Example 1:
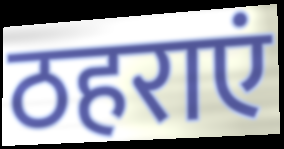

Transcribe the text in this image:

ठहराएं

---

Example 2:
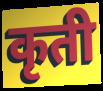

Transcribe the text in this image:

कृती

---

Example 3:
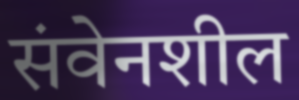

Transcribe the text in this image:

संवेनशील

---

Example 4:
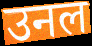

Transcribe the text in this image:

उनल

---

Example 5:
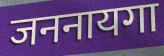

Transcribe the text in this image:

जननायगा